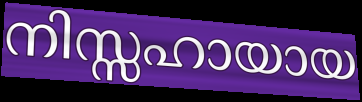
നിസ്സഹായായ